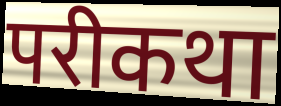
परीकथा